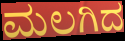
ಮಲಗಿದ